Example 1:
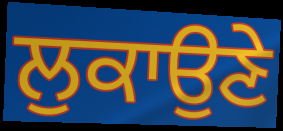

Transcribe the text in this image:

ਲੁਕਾਉਣੇ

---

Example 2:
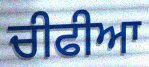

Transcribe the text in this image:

ਚੀਫੀਆ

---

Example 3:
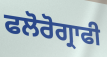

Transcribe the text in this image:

ਫਲੋਰੋਗ੍ਰਾਫੀ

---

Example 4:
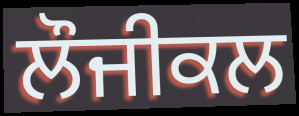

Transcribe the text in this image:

ਲੌਜੀਕਲ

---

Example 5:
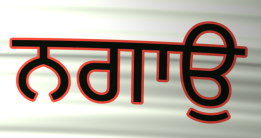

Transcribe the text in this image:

ਨਗਾਉ